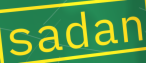
sadan